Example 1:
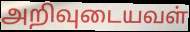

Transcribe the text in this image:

அறிவுடையவள்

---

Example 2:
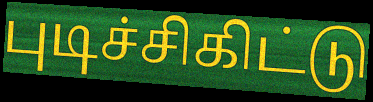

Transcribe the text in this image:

புடிச்சிகிட்டு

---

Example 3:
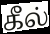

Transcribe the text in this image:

கீல்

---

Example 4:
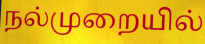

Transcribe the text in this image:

நல்முறையில்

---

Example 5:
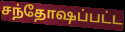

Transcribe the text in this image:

சந்தோஷப்பட்ட